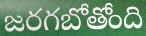
జరగబోతోంది